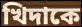
খিদাকে